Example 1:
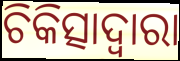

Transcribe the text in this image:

ଚିକିତ୍ସାଦ୍ଵାରା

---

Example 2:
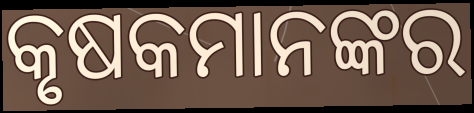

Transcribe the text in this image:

କୃଷକମାନଙ୍କର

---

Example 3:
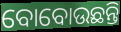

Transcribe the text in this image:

ବୋବୋଉଛନ୍ତି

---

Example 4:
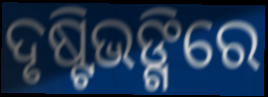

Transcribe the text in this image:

ଦୃଷ୍ଟିଭଙ୍ଗିରେ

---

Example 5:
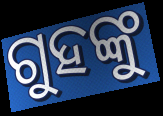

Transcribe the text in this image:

ଗୁହଙ୍କୁ